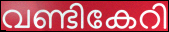
വണ്ടികേറി